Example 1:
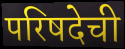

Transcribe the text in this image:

परिषदेची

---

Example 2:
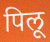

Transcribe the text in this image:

पिलू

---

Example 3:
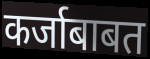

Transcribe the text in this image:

कर्जाबाबत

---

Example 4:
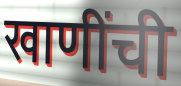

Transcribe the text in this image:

खाणींची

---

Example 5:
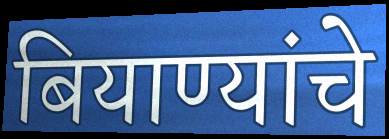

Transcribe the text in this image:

बियाण्यांचे